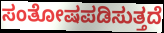
ಸಂತೋಷಪಡಿಸುತ್ತದೆ